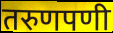
तरुणपणी